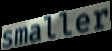
smaller